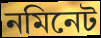
নমিনেট